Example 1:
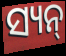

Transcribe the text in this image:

ସ୍ୟନ୍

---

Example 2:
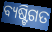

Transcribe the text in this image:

ବ୍ୟଷ୍ଟିଗତ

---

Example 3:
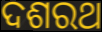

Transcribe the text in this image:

ଦଶରଥ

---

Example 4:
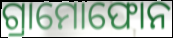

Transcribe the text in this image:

ଗ୍ରାମୋଫୋନ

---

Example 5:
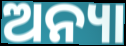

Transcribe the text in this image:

ଅନ୍ୟା